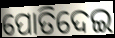
ପୋତିଦେଇ